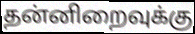
தன்னிறைவுக்கு